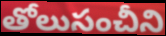
తోలుసంచీని